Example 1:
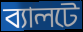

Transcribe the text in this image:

ব্যালটে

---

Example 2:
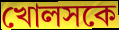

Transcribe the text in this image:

খোলসকে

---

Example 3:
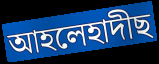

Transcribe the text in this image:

আহলেহাদীছ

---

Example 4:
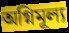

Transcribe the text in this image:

অগ্নিমূল্য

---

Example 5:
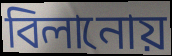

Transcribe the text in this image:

বিলানোয়